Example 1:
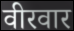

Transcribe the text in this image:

वीरवार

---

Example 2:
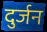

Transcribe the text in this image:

दुर्जन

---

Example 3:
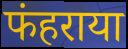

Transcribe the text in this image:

फंहराया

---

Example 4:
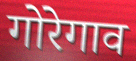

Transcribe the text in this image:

गोरेगाव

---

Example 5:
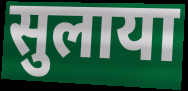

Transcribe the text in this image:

सुलाया